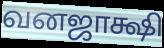
வனஜாக்ஷி